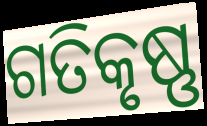
ଗତିକୃଷ୍ଣ